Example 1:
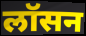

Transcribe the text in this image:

लॉसन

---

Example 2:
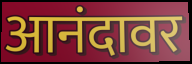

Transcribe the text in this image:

आनंदावर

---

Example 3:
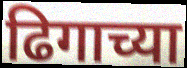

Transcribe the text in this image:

ढिगाच्या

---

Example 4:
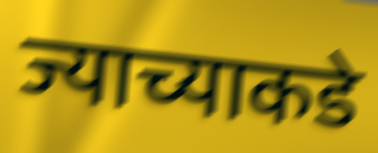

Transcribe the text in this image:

ज्याच्याकडे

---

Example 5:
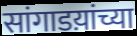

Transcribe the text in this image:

सांगाडय़ांच्या